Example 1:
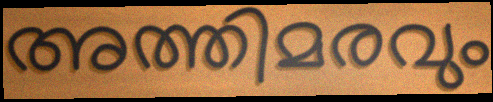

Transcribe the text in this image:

അത്തിമരവും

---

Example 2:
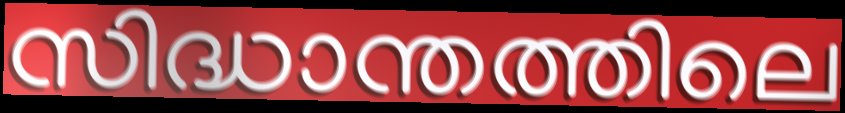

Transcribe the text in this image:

സിദ്ധാന്തത്തിലെ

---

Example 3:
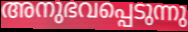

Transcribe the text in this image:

അനുഭവപ്പെടുന്നു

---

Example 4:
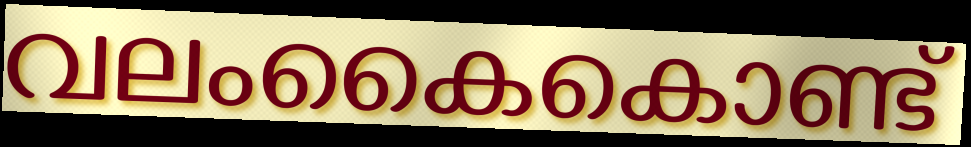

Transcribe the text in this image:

വലംകൈകൊണ്ട്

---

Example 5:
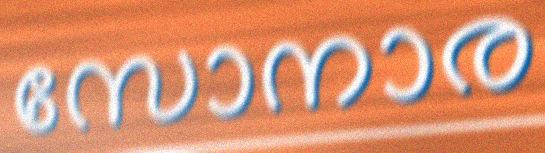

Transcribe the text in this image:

സോനാര